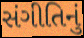
સંગીતિનું